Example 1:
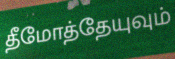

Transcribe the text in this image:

தீமோத்தேயுவும்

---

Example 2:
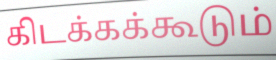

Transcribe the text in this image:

கிடக்கக்கூடும்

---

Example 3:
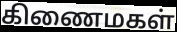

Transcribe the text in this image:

கிணைமகள்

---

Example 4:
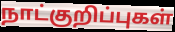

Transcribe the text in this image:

நாட்குறிப்புகள்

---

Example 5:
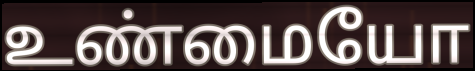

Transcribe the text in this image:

உண்மையோ